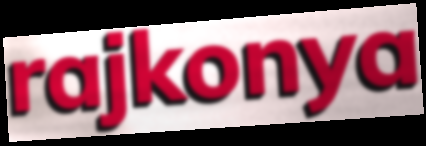
rajkonya